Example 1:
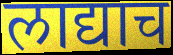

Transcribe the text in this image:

लाद्याच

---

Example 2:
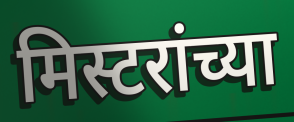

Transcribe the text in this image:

मिस्टरांच्या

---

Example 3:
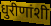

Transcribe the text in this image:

धुरीणांशी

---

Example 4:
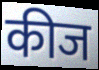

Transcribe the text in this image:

कीज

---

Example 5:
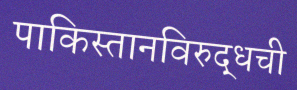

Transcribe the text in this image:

पाकिस्तानविरुद्धची